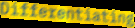
Differentiating